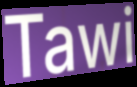
Tawi